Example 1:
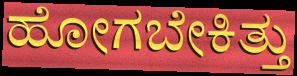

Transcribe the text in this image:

ಹೋಗಬೇಕಿತ್ತು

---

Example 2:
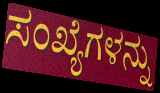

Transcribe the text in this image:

ಸಂಖ್ಯೆಗಳನ್ನು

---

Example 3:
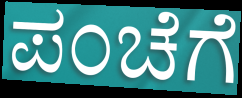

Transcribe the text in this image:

ಪಂಚೆಗೆ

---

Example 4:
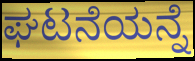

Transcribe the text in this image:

ಘಟನೆಯನ್ನೆ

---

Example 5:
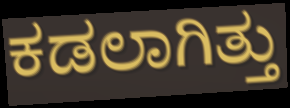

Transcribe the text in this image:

ಕಡಲಾಗಿತ್ತು